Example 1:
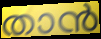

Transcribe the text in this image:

താൻ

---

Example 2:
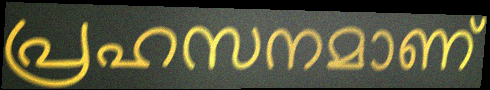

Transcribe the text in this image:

പ്രഹസനമാണ്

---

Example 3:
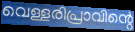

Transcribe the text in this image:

വെള്ളരിപ്രാവിന്റെ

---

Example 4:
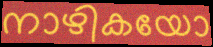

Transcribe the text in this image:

നാഴികയോ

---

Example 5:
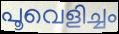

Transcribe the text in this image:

പൂവെളിച്ചം